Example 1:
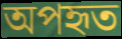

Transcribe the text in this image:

অপহৃত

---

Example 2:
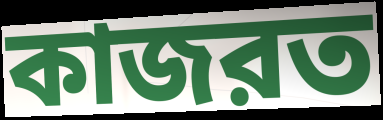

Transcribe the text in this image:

কাজরত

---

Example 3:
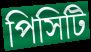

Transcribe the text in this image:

পিসিটি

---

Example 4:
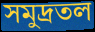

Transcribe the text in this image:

সমুদ্রতল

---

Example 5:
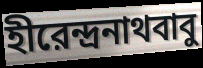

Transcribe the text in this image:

হীরেন্দ্রনাথবাবু